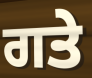
ਗਤੇ